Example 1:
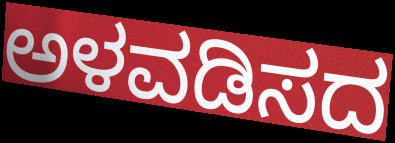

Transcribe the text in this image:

ಅಳವಡಿಸದ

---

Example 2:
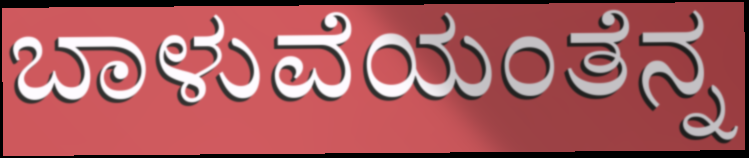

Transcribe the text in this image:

ಬಾಳುವೆಯಂತೆನ್ನ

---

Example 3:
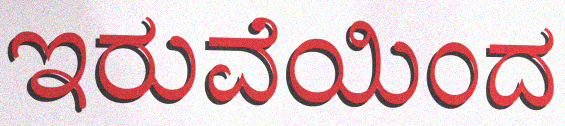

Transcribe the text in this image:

ಇರುವೆಯಿಂದ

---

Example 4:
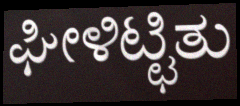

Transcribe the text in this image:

ಘೀಳಿಟ್ಟಿತು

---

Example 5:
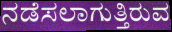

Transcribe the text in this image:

ನಡೆಸಲಾಗುತ್ತಿರುವ